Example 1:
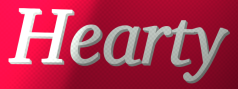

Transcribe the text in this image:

Hearty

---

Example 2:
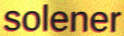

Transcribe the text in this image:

solener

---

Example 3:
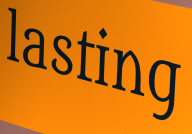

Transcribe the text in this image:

lasting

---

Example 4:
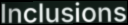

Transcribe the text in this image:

Inclusions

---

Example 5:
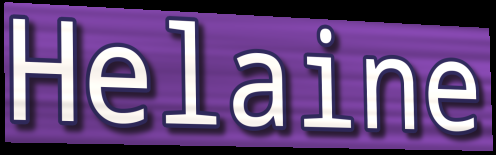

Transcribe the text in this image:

Helaine